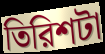
তিরিশটা